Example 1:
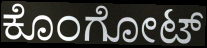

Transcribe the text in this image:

ಕೊಂಗೋಟ್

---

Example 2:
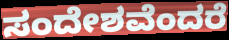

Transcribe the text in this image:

ಸಂದೇಶವೆಂದರೆ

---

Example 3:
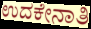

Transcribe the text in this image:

ಉದಕೇನಾತಿ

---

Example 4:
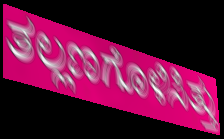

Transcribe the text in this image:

ತಲ್ಲಣಗೊಳಿಸಿತ್ತು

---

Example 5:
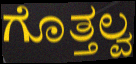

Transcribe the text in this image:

ಗೊತ್ತಲ್ವ